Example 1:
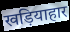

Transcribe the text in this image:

खड़ियाहार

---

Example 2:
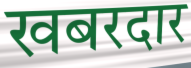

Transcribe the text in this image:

खबरदार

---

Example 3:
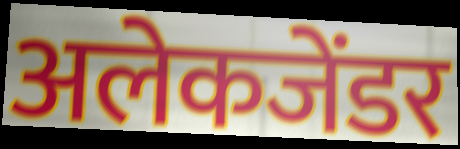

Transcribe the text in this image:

अलेकजेंडर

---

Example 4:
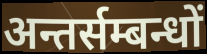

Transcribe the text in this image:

अन्तर्सम्बन्धों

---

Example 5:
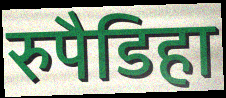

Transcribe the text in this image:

रुपैडिहा